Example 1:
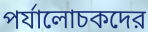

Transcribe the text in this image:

পর্যালোচকদের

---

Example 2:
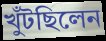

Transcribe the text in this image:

খুঁটছিলেন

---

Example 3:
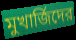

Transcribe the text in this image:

মুখার্জিদের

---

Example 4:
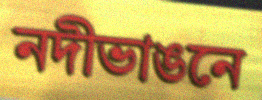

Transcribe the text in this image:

নদীভাঙনে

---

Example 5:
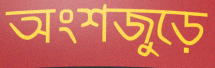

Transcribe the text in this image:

অংশজুড়ে